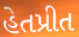
હેતપ્રીત